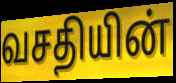
வசதியின்